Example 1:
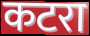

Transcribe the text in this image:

कटरा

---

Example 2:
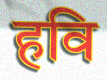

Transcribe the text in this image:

हवि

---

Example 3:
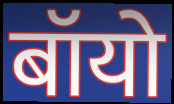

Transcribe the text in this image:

बॉयो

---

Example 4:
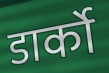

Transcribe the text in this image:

डार्को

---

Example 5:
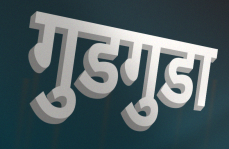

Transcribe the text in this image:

गुडगुडा